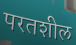
परतशील